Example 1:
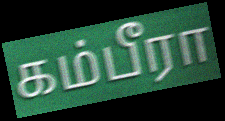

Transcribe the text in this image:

கம்பீரா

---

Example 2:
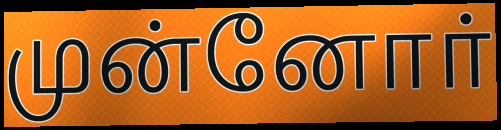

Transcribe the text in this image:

முன்னோர்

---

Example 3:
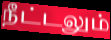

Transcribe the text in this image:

நீட்டலும்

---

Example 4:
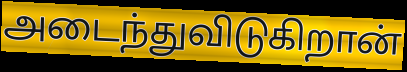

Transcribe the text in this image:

அடைந்துவிடுகிறான்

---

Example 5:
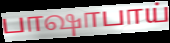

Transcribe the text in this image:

பாஷாபாய்